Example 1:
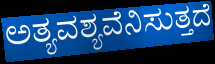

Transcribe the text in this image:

ಅತ್ಯವಶ್ಯವೆನಿಸುತ್ತದೆ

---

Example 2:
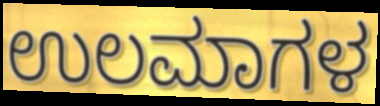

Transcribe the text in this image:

ಉಲಮಾಗಳ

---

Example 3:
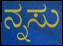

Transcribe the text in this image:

ನ್ನಸು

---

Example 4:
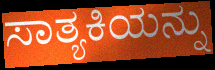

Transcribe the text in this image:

ಸಾತ್ಯಕಿಯನ್ನು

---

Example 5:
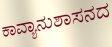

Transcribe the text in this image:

ಕಾವ್ಯಾನುಶಾಸನದ